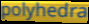
polyhedra